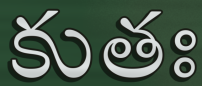
కుతః